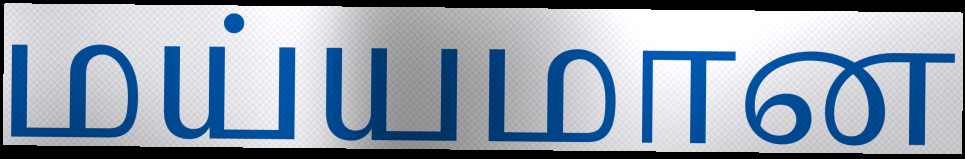
மய்யமான